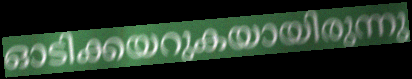
ഓടിക്കയറുകയായിരുന്നു